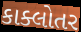
કાક્લોતર